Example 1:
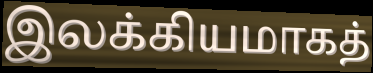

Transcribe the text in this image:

இலக்கியமாகத்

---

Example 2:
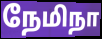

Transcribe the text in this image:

நேமிநா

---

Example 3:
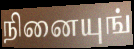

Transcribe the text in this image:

நினையுங்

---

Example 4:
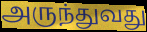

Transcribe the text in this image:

அருந்துவது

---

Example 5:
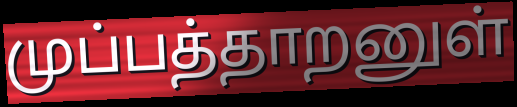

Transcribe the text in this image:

முப்பத்தாறனுள்